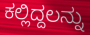
ಕಲ್ಲಿದ್ದಲನ್ನು